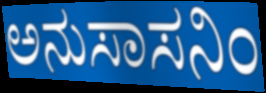
ಅನುಸಾಸನಿಂ